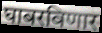
घाबरविणार